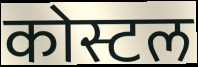
कोस्टल